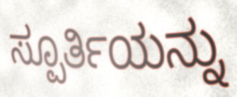
ಸ್ಪೂರ್ತಿಯನ್ನು